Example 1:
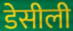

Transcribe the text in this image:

डेसीली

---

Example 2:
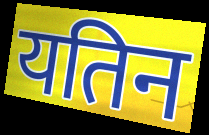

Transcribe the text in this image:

यतिन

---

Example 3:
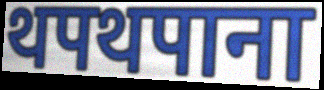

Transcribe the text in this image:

थपथपाना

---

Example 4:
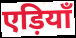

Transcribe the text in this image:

एड़ियाँ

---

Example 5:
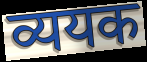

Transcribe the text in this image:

व्ययक